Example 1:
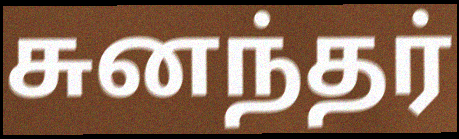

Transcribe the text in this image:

சுனந்தர்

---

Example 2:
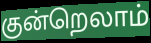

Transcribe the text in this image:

குன்றெலாம்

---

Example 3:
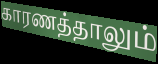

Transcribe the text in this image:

காரணத்தாலும்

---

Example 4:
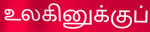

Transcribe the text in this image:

உலகினுக்குப்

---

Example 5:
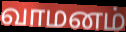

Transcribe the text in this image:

வாமனம்